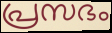
പ്രസഭം